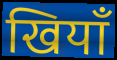
खियाँ